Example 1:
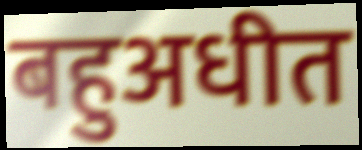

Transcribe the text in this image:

बहुअधीत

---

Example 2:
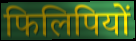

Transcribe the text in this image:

फिलिपियों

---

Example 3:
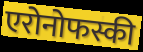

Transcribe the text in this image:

एरोनोफस्की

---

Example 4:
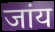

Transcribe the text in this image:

जांय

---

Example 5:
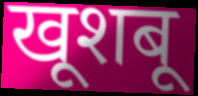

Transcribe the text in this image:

खूशबू